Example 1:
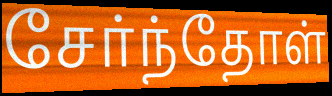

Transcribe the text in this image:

சேர்ந்தோள்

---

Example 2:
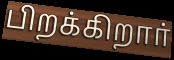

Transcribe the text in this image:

பிறக்கிறார்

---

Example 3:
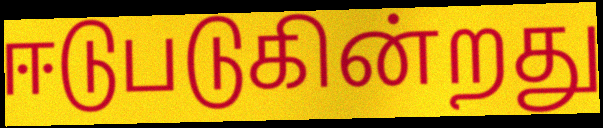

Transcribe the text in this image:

ஈடுபடுகின்றது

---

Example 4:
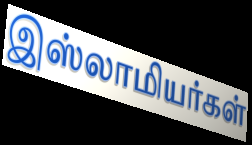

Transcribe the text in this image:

இஸ்லாமியர்கள்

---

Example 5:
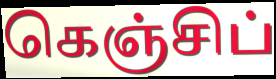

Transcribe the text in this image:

கெஞ்சிப்